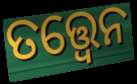
ତତ୍ତ୍ଵେନ